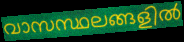
വാസസ്ഥലങ്ങളിൽ